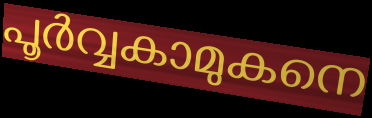
പൂർവ്വകാമുകനെ